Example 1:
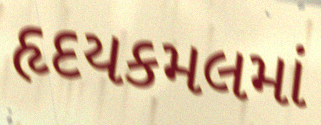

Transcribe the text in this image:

હૃદયકમલમાં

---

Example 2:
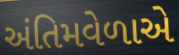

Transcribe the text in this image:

અંતિમવેળાએ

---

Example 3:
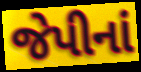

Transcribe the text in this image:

જેપીનાં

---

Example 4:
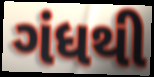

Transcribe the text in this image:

ગંધથી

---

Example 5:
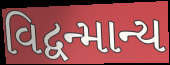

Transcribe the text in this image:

વિદ્વન્માન્ય